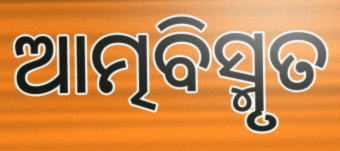
ଆତ୍ମବିସ୍ମୃତ